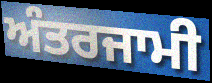
ਅੰਤਰਜਾਮੀ